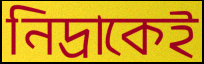
নিদ্রাকেই